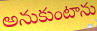
అనుకుంటాను